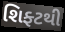
શિફ્ટથી